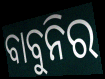
ବାବୁନିର